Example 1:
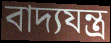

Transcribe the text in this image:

বাদ্যযন্ত্র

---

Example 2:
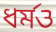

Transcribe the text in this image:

ধর্মও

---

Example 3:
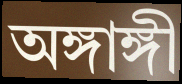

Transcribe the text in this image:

অঙ্গাঙ্গী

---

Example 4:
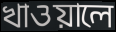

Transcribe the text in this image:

খাওয়ালে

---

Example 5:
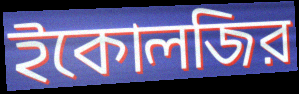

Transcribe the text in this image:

ইকোলজির